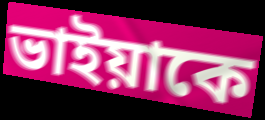
ভাইয়াকে